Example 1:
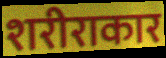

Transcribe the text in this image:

शरीराकार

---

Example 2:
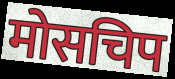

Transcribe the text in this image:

मोसचिप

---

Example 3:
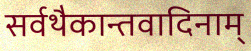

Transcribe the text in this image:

सर्वथैकान्तवादिनाम्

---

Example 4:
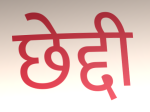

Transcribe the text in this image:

छेद्दी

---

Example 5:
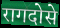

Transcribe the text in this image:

रागदोसे